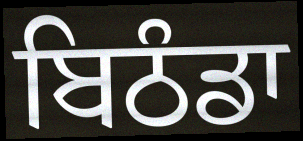
ਬਿਠੰਡਾ